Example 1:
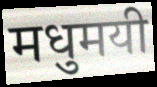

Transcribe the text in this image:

मधुमयी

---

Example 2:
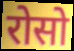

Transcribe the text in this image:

रोसो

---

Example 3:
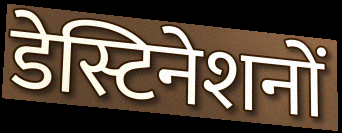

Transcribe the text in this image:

डेस्टिनेशनों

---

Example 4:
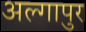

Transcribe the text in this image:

अल्गापुर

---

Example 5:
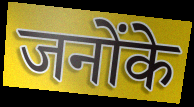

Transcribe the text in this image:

जनोंके